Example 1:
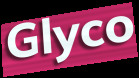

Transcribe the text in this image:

Glyco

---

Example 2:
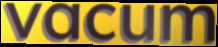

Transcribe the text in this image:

vacum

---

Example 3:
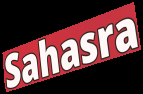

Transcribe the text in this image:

Sahasra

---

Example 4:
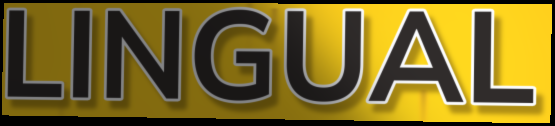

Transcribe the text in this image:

LINGUAL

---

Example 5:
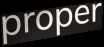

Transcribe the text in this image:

proper